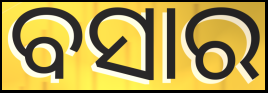
ବସାର